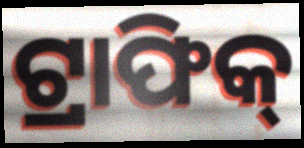
ଟ୍ରାଫିକ୍